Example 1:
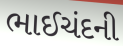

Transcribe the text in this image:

ભાઈચંદની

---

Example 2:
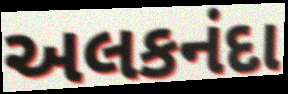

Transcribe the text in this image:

અલકનંદા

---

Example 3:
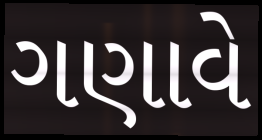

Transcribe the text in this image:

ગણાવે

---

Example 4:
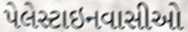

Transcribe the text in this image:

પેલેસ્ટાઇનવાસીઓ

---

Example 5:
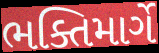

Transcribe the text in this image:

ભક્તિમાર્ગે